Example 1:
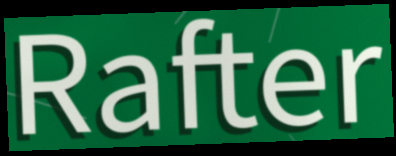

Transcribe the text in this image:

Rafter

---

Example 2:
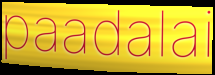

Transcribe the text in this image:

paadalai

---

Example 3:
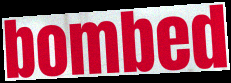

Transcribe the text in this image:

bombed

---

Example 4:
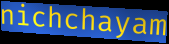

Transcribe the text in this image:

nichchayam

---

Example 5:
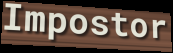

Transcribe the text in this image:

Impostor